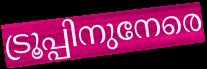
ട്രൂപ്പിനുനേരെ